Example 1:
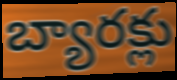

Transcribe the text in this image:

బ్యారక్లు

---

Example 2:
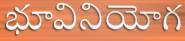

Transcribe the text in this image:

భూవినియోగ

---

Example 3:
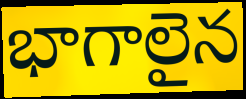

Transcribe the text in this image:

భాగాలైన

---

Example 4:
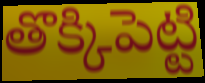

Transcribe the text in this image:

తొక్కిపెట్టి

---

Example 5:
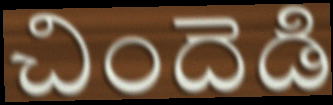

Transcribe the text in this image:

చిందెడి